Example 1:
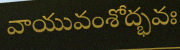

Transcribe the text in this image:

వాయువంశోద్భవః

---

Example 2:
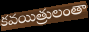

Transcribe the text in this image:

కవయిత్రులంతా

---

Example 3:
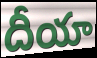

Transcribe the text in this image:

దీయా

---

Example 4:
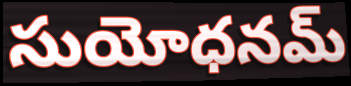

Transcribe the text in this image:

సుయోధనమ్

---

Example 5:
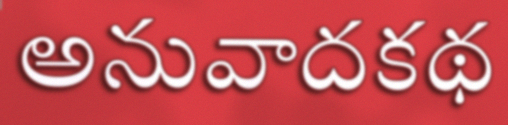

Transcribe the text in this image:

అనువాదకథ